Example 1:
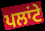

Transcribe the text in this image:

ਪਲਾਂਟੇ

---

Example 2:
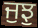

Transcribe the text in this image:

ਜੁਝੁ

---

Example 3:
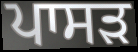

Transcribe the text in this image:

ਪਾਸੜ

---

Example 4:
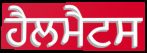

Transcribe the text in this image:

ਹੈਲਮੈਟਸ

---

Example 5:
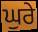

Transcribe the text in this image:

ਘੁਰੇ